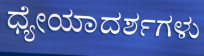
ಧ್ಯೇಯಾದರ್ಶಗಳು